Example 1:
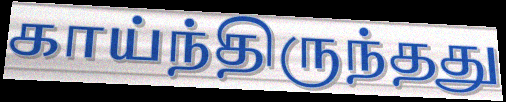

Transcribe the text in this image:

காய்ந்திருந்தது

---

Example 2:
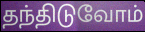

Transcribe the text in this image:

தந்திடுவோம்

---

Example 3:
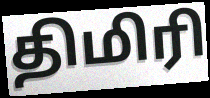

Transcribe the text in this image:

திமிரி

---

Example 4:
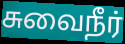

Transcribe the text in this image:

சுவைநீர்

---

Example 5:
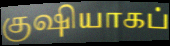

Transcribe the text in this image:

குஷியாகப்